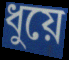
ধুয়ে